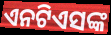
ଏନଟିଏସଙ୍କ